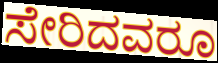
ಸೇರಿದವರೂ